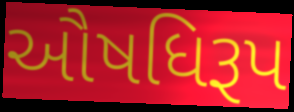
ઔષધિરૂપ